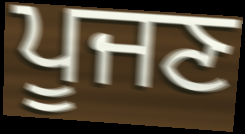
ਪੂਜਣ